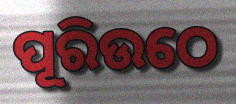
ପୂରିଉଠେ